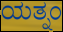
ಯತ್ನಂ